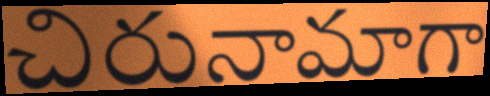
చిరునామాగా